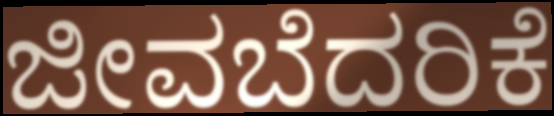
ಜೀವಬೆದರಿಕೆ